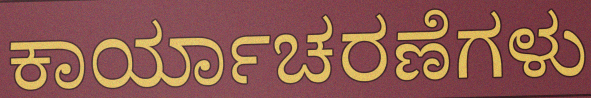
ಕಾರ್ಯಾಚರಣೆಗಳು